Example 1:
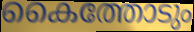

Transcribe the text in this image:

കൈത്തോടും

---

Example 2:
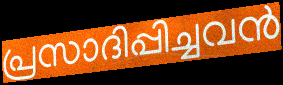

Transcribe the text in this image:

പ്രസാദിപ്പിച്ചവൻ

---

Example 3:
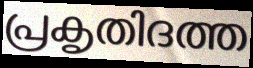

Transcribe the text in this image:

പ്രകൃതിദത്ത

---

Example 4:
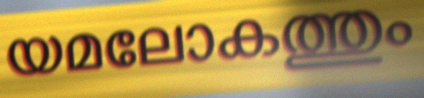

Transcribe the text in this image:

യമലോകത്തും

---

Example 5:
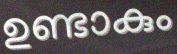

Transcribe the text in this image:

ഉണ്ടാകും